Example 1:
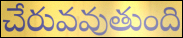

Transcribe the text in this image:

చేరువవుతుంది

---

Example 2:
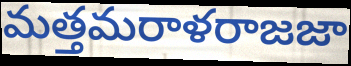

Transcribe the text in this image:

మత్తమరాళరాజజా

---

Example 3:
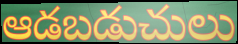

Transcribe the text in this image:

ఆడబడుచులు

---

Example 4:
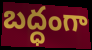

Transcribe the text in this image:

బద్ధంగా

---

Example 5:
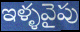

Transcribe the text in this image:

ఇళ్ళవైపు